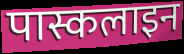
पास्कलाइन